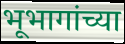
भूभागांच्या